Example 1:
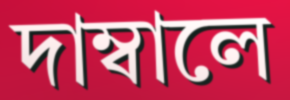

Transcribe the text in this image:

দাম্বালে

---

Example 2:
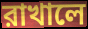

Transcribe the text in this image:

রাখালে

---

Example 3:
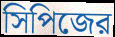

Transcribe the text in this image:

সিপিজের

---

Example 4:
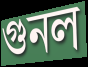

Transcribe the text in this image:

গুনল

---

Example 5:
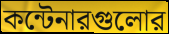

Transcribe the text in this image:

কন্টেনারগুলোর